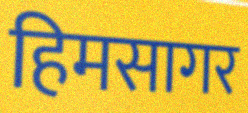
हिमसागर